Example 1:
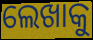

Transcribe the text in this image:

ଲେଖାକୁ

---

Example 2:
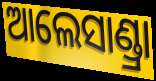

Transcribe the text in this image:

ଆଲେସାଣ୍ଡ୍ରା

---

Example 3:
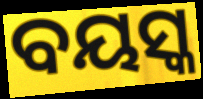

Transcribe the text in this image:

ବୟସ୍କ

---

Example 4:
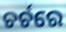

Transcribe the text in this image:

ଚର୍ଚରେ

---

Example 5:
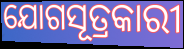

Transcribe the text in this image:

ଯୋଗସୂତ୍ରକାରୀ